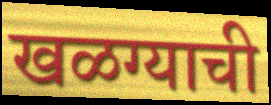
खळग्याची